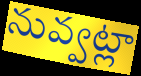
నువ్వట్లా